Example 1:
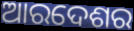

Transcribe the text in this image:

ଆରଦେଶର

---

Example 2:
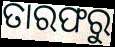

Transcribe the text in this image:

ତାରଫରୁ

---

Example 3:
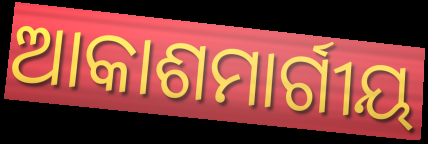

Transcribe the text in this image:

ଆକାଶମାର୍ଗୀୟ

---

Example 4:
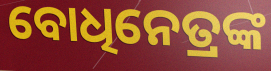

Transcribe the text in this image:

ବୋଧିନେତ୍ରଙ୍କ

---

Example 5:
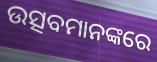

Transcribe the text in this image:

ଉତ୍ସବମାନଙ୍କରେ